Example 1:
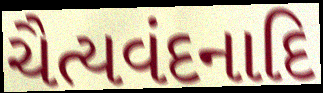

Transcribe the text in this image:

ચૈત્યવંદનાદિ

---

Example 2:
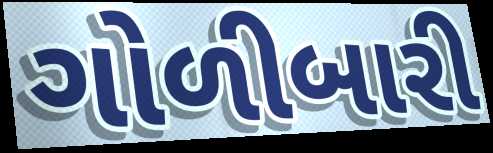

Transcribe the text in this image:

ગોળીબારી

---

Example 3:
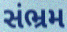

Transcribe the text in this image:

સંભ્રમ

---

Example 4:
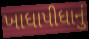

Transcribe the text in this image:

ખાધાપીધાનું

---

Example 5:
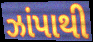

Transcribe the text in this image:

ઝાંપાથી